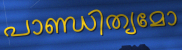
പാണ്ഡിത്യമോ